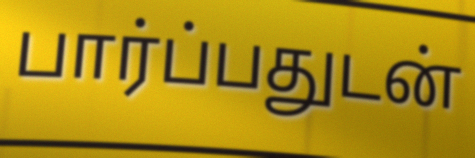
பார்ப்பதுடன்